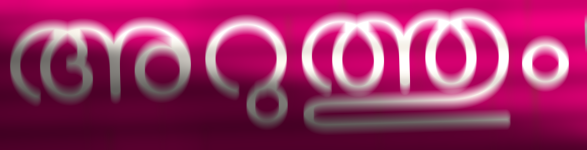
അറുത്തും